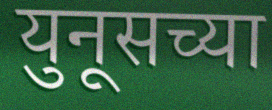
युनूसच्या